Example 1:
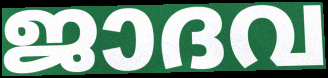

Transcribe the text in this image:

ജാദവ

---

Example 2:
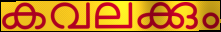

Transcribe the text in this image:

കവലക്കും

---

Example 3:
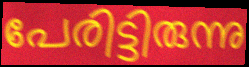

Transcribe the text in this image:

പേരിട്ടിരുന്നു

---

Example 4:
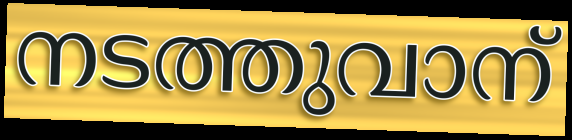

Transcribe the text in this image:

നടത്തുവാന്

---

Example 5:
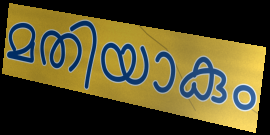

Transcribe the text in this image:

മതിയാകും